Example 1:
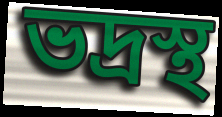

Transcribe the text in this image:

ভদ্রস্থ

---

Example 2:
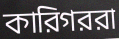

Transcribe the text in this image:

কারিগররা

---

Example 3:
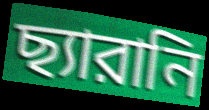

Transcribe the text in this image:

ছ্যারানি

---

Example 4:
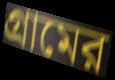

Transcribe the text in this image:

গ্রামের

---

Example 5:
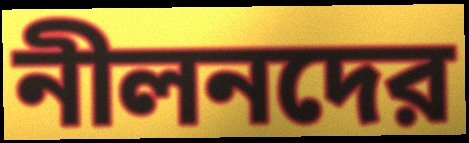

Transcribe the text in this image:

নীলনদের